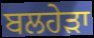
ਬਲਹੇੜਾ